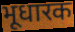
भूधारक